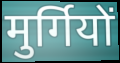
मुर्गियों